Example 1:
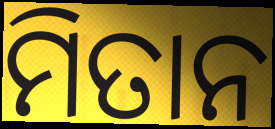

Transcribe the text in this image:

ମିତାନ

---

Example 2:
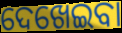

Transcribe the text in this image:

ଦେଖେଇବା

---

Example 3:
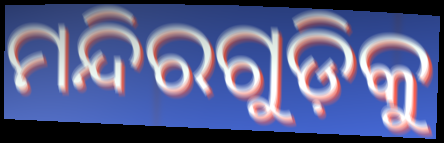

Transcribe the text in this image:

ମନ୍ଦିରଗୁଡ଼ିକୁ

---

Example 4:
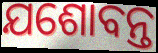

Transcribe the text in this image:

ଯଶୋବନ୍ତ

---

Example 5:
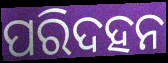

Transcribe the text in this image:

ପରିଦହନ